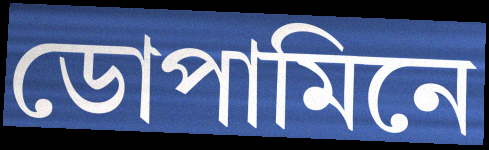
ডোপামিনে